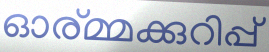
ഓര്മ്മക്കുറിപ്പ്